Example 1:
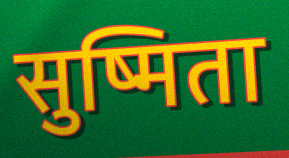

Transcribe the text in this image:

सुष्मिता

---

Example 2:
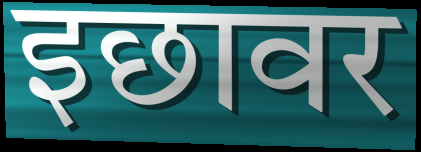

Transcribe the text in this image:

इछावर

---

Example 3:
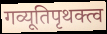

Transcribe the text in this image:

गव्यूतिपृथक्त्व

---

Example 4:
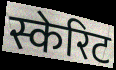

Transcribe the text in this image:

स्केरिट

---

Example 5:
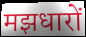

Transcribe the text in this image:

मझधारों